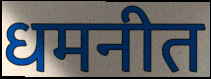
धमनीत